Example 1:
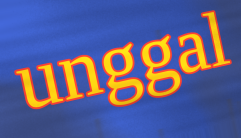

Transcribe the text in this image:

unggal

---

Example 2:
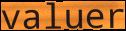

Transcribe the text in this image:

valuer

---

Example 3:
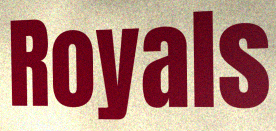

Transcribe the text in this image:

Royals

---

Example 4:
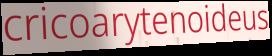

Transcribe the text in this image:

cricoarytenoideus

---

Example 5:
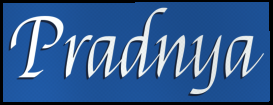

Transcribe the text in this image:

Pradnya